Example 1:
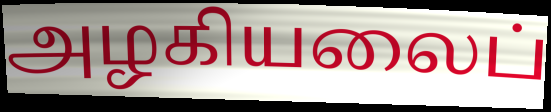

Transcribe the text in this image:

அழகியலைப்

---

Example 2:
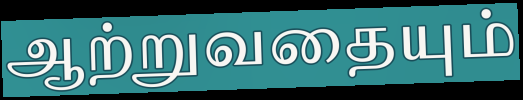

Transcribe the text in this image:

ஆற்றுவதையும்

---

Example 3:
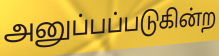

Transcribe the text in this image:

அனுப்பப்படுகின்ற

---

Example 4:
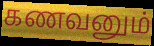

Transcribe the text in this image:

கணவனும்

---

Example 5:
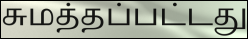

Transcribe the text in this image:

சுமத்தப்பட்டது